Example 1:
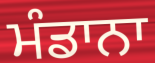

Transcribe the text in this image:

ਮੰਡਾਨਾ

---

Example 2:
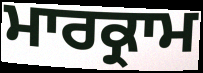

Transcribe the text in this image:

ਮਾਰਕ੍ਰਾਮ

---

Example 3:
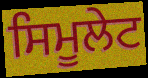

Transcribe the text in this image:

ਸਿਮੂਲੇਟ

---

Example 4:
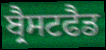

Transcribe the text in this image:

ਬ੍ਰੈਸਟਫੈਡ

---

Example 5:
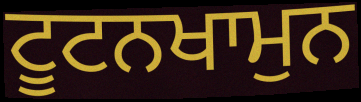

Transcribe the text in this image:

ਟੂਟਨਖਾਮੁਨ